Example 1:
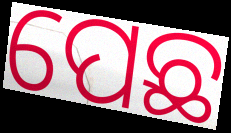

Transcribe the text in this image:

ପେଛ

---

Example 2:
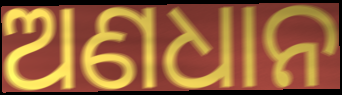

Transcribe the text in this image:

ଅଣଧାନ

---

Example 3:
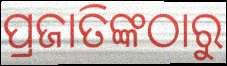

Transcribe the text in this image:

ପ୍ରଜାତିଙ୍କଠାରୁ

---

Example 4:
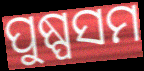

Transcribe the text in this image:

ପୁଷ୍ପସମ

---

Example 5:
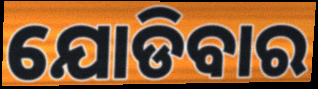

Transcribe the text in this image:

ଯୋଡିବାର